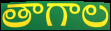
తాగాల